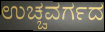
ಉಚ್ಚವರ್ಗದ